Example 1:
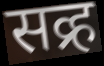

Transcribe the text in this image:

सव्र्ह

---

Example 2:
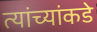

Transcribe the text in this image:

त्यांच्यांकडे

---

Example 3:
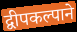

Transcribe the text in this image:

द्वीपकल्पाने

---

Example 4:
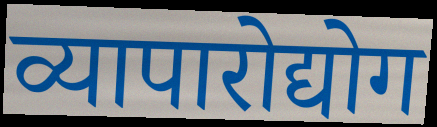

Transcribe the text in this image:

व्यापारोद्योग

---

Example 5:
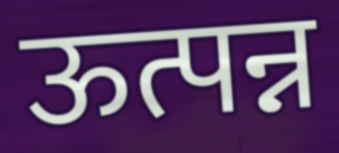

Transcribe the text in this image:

ऊत्पन्न